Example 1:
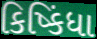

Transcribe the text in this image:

કિષ્કિંધા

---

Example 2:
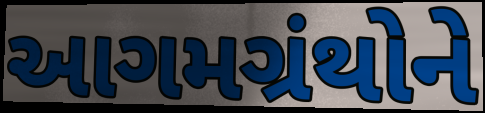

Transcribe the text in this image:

આગમગ્રંથોને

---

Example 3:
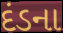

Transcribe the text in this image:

દંડના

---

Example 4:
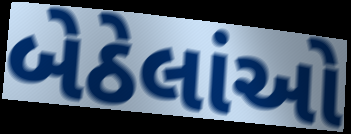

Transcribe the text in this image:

બેઠેલાંઓ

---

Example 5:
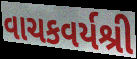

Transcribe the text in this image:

વાચકવર્યશ્રી